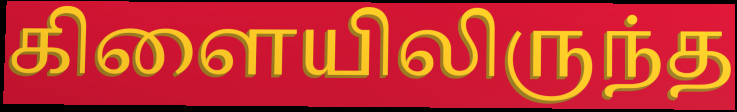
கிளையிலிருந்த